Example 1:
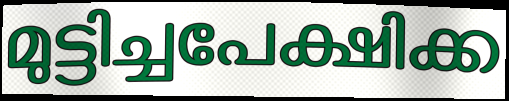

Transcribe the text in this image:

മുട്ടിച്ചപേക്ഷിക്ക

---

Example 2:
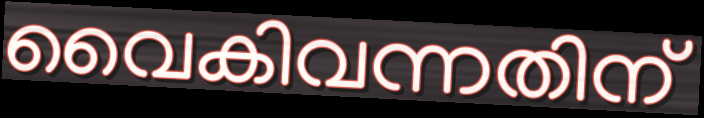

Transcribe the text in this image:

വൈകിവന്നതിന്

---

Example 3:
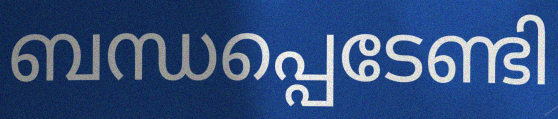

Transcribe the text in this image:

ബന്ധപ്പെടേണ്ടി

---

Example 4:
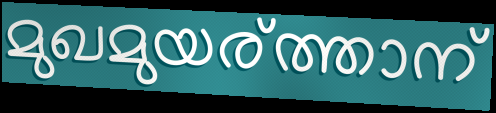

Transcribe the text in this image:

മുഖമുയര്ത്താന്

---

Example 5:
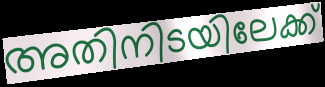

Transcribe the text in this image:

അതിനിടയിലേക്ക്